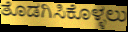
ತೊಡಗಿಸಿಕೊಳ್ಳಲು